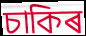
চাকিৰ